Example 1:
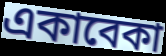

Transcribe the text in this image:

একাবেকা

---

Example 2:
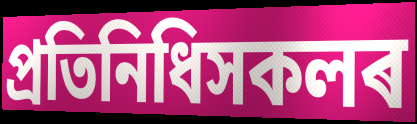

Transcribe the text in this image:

প্ৰতিনিধিসকলৰ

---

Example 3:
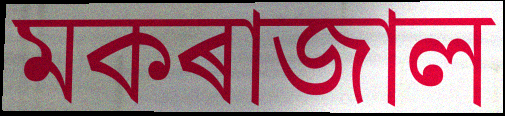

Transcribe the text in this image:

মকৰাজাল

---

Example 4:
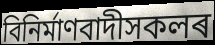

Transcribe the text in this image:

বিনিৰ্মাণবাদীসকলৰ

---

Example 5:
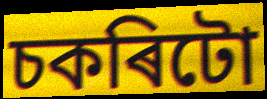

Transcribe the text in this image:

চকৰিটো